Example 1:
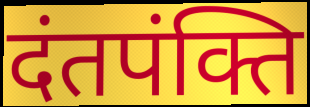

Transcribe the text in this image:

दंतपंक्ति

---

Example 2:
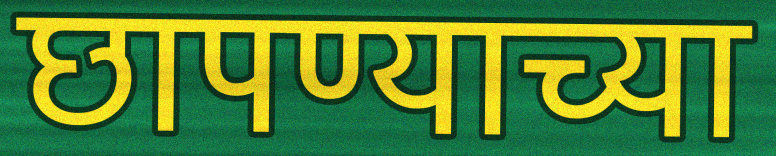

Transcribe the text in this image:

छापण्याच्या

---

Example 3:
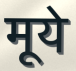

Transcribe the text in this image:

मूये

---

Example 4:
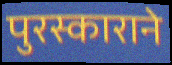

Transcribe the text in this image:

पुरस्काराने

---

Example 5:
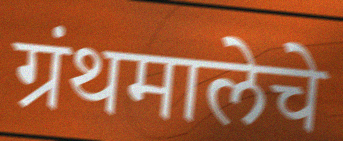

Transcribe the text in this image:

ग्रंथमालेचे